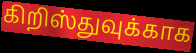
கிறிஸ்துவுக்காக